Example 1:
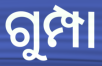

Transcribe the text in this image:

ଗୁମ୍ପା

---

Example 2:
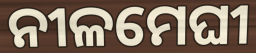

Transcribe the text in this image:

ନୀଳମେଘୀ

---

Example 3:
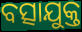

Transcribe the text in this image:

ବତ୍ସାଯୁକ୍ତ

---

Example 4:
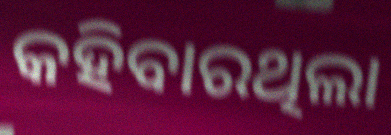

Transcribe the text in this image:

କହିବାରଥିଲା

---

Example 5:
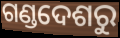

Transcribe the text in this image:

ଗଣ୍ଡଦେଶରୁ